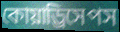
কোয়াড্রিসেপস